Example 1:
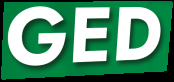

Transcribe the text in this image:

GED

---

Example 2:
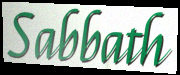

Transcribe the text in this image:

Sabbath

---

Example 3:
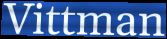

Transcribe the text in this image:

Vittman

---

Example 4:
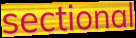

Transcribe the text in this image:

sectional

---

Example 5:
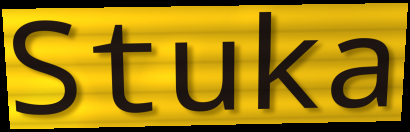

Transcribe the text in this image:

Stuka